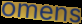
omens